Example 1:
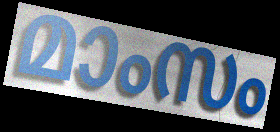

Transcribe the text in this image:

മാംസം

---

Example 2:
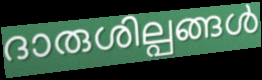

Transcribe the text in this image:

ദാരുശില്പങ്ങൾ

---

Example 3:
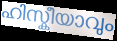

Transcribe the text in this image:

ഹിസ്കീയാവും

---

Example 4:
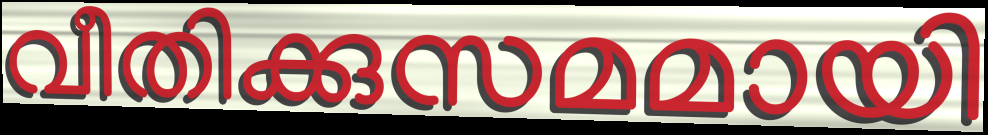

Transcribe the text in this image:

വീതിക്കുസമമായി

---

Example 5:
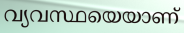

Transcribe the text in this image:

വ്യവസ്ഥയെയാണ്